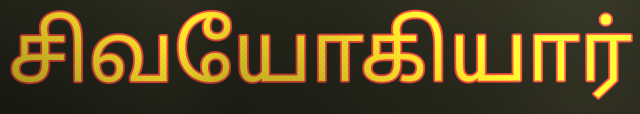
சிவயோகியார்